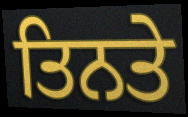
ਤਿਨਤੇ